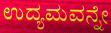
ಉದ್ಯಮವನ್ನೇ